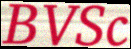
BVSc